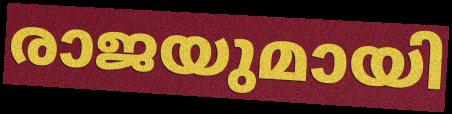
രാജയുമായി